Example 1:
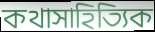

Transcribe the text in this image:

কথাসাহিত্যিক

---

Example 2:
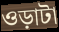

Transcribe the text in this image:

ওড়াটা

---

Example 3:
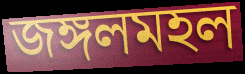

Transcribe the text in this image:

জঙ্গলমহল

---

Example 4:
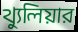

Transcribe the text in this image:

থ্যুলিয়ার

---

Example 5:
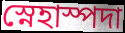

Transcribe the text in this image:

স্নেহাস্পদা